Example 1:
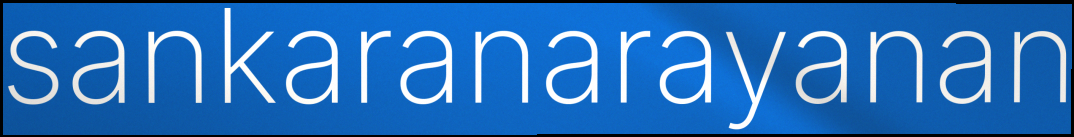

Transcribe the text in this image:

sankaranarayanan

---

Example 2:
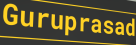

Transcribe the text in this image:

Guruprasad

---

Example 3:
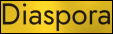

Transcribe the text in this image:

Diaspora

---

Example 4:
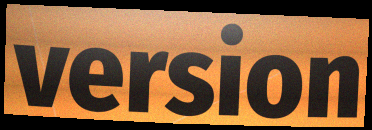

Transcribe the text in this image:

version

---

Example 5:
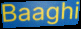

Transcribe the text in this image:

Baaghi